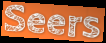
Seers